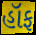
હૉફ